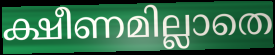
ക്ഷീണമില്ലാതെ